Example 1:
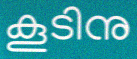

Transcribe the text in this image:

കൂടിനു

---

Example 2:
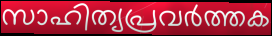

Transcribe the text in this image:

സാഹിത്യപ്രവർത്തക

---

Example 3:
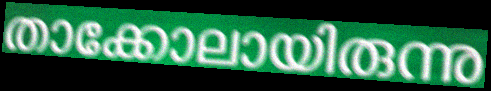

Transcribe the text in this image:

താക്കോലായിരുന്നു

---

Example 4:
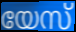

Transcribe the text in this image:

യേസ്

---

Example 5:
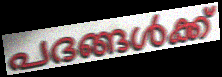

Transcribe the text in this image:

പദങ്ങൾക്ക്